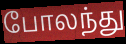
போலந்து